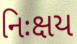
નિઃક્ષય